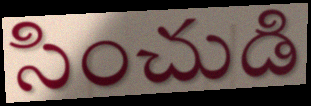
సించుడి